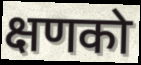
क्षणको